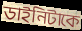
ডাইনিটাকে